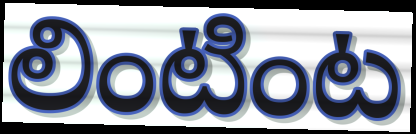
లింటింట